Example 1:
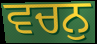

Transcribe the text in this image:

ਵਚਨੁ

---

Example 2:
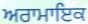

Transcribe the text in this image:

ਅਰਾਮਾਇਕ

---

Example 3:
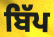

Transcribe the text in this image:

ਬਿੱਪ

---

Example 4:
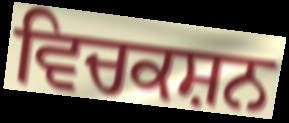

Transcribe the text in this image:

ਵਿਚਕਸ਼ਨ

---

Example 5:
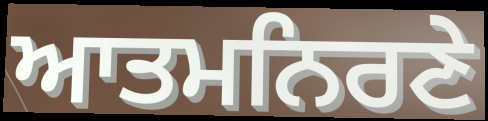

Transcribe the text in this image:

ਆਤਮਨਿਰਣੇ